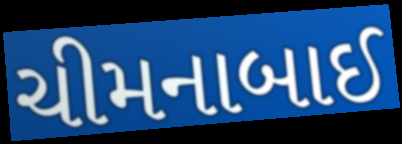
ચીમનાબાઈ